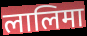
लालिमा